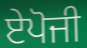
ਏਪੋਜੀ